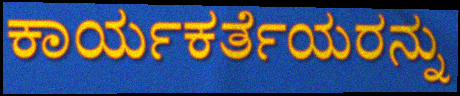
ಕಾರ್ಯಕರ್ತೆಯರನ್ನು